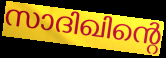
സാദിഖിന്റെ